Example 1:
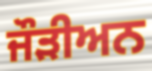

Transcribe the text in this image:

ਜੌੜੀਅਨ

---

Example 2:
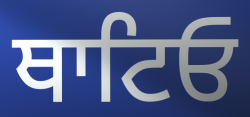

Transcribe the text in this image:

ਥਾਟਿਓ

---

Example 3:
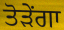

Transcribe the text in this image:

ਤੋੜੇਂਗਾ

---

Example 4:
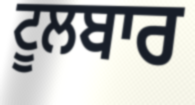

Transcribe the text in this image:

ਟੂਲਬਾਰ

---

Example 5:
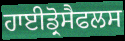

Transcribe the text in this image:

ਹਾਈਡ੍ਰੋਸੈਫਲਸ